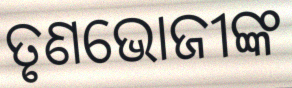
ତୃଣଭୋଜୀଙ୍କ